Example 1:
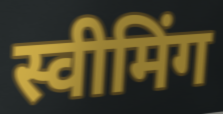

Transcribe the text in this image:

स्वीमिंग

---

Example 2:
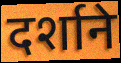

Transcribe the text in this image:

दर्शाने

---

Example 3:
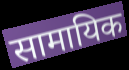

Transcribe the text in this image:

सामायिक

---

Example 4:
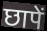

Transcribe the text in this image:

छापें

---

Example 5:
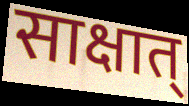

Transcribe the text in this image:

साक्षात्